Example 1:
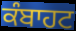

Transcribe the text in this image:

ਕੰਬਾਹਟ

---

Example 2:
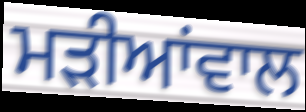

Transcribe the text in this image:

ਮੜੀਆਂਵਾਲ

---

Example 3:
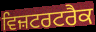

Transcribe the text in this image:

ਵਿਜ਼ਟਰਟਰੈਕ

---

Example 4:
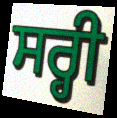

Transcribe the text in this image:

ਸਰ੍ਹੀ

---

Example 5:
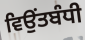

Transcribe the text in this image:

ਵਿਉਂਤਬੰਧੀ